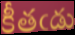
కీతఁడు